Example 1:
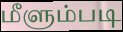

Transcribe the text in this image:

மீளும்படி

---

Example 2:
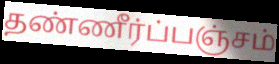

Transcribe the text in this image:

தண்ணீர்ப்பஞ்சம்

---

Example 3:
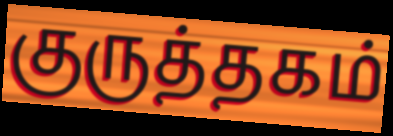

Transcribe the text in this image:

குருத்தகம்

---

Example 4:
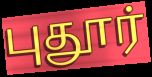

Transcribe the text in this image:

புதூர்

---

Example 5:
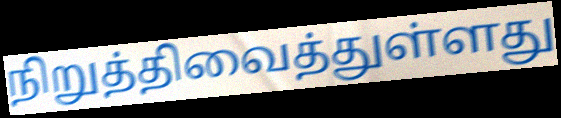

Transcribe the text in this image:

நிறுத்திவைத்துள்ளது